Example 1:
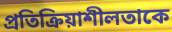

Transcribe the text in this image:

প্রতিক্রিয়াশীলতাকে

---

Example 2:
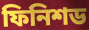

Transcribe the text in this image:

ফিনিশড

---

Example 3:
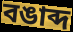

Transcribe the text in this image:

বঙাব্দ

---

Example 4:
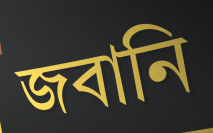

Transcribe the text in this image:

জবানি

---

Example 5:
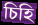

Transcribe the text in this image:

চিহি